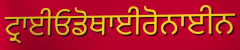
ਟ੍ਰਾਈਓਡੋਥਾਈਰੋਨਾਈਨ